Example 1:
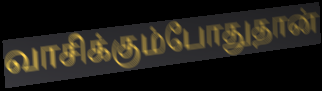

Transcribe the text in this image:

வாசிக்கும்போதுதான்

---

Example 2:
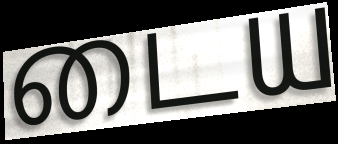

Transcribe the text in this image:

டைய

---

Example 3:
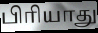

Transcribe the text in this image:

பிரியாது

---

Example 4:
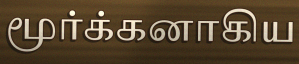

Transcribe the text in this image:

மூர்க்கனாகிய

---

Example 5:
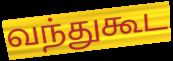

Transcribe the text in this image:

வந்துகூட